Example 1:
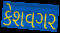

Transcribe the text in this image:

કેશવગર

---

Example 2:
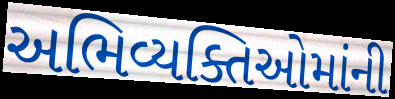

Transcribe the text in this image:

અભિવ્યક્તિઓમાંની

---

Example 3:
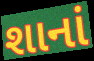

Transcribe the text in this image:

શાનાં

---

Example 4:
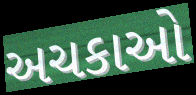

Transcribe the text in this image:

અચકાઓ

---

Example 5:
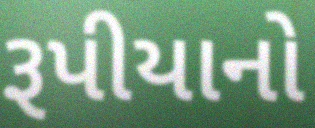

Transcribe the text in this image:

રૂપીયાનો